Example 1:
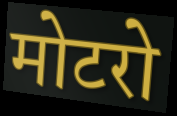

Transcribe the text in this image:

मोटरो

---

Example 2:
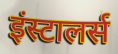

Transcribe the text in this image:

इंस्टालर्स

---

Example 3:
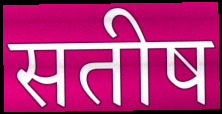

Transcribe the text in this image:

सतीष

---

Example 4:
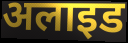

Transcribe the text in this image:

अलाइड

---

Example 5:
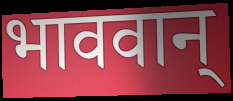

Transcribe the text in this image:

भाववान्